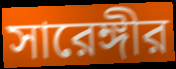
সারেঙ্গীর